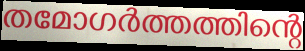
തമോഗർത്തത്തിന്റെ